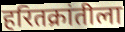
हरितक्रांतीला